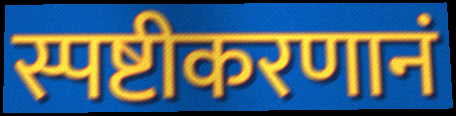
स्पष्टीकरणानं